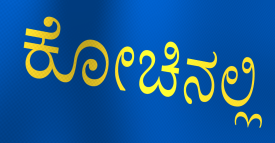
ಕೋಚಿನಲ್ಲಿ